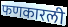
फणकारली